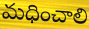
మధించాలి